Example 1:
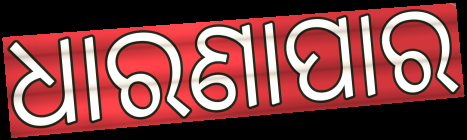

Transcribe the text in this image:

ଧାରଣାପାର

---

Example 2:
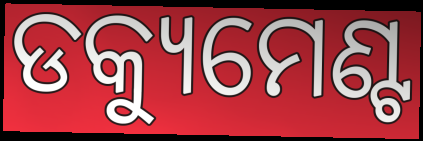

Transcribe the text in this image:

ଡକ୍ୟୁମେଣ୍ଟ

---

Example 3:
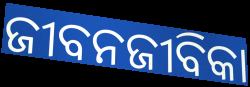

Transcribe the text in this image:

ଜୀବନଜୀବିକା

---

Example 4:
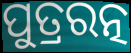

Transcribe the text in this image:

ପୁତ୍ରରତ୍ନ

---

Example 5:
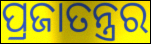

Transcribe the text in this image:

ପ୍ରଜାତନ୍ତ୍ରର